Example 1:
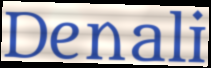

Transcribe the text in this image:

Denali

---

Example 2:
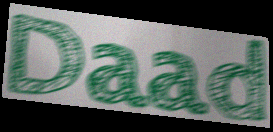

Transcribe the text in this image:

Daad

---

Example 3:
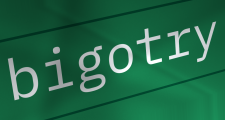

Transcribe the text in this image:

bigotry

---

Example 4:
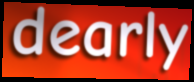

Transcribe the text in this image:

dearly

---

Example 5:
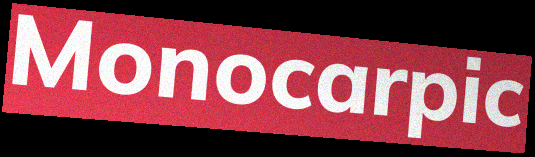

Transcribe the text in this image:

Monocarpic